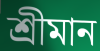
শ্রীমান